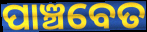
ପାଞ୍ଚବେତ